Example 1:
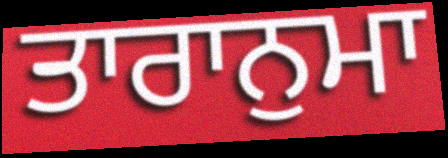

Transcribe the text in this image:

ਤਾਰਾਨੁਮਾ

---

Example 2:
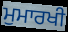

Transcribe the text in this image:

ਮੁਮਾਰਖੀ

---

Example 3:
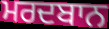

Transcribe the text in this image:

ਮਰਦਬਾਨ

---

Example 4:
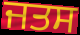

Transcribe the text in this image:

ਜਤਸ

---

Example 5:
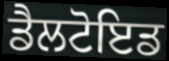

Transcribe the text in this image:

ਡੈਲਟੋਇਡ